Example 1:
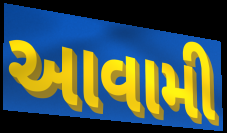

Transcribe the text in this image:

આવામી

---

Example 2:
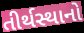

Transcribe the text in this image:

તીર્થસ્થાનો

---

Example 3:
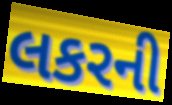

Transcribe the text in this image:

લકરની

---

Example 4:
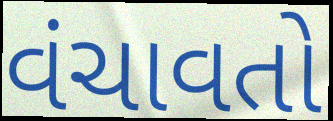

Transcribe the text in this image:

વંચાવતો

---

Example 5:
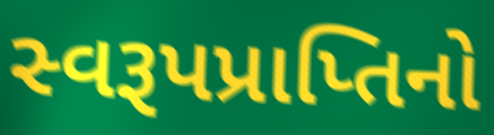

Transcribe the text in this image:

સ્વરૂપપ્રાપ્તિનો